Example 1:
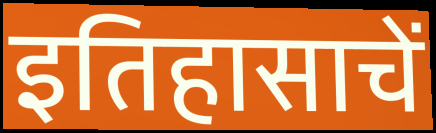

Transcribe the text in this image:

इतिहासाचें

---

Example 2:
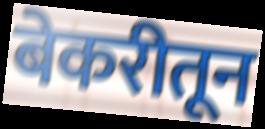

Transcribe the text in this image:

बेकरीतून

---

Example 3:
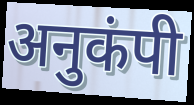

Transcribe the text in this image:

अनुकंपी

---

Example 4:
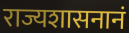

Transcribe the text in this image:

राज्यशासनानं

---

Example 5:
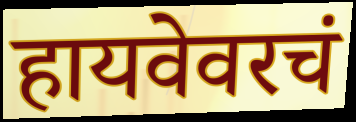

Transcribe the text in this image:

हायवेवरचं